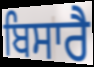
ਬਿਸਾਰੈ